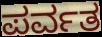
ಪರ್ವತ